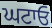
ਘਟਾਓ